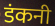
डंकनी